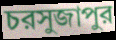
চরসুজাপুর